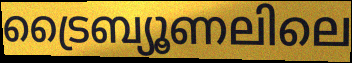
ട്രൈബ്യൂണലിലെ